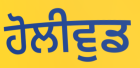
ਹੋਲੀਵੁਡ